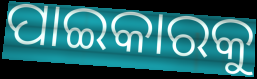
ପାଇକାରକୁ